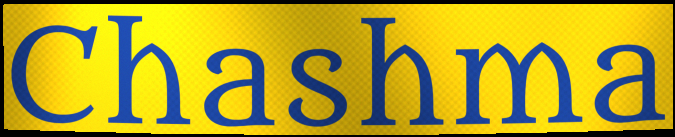
Chashma